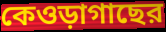
কেওড়াগাছের